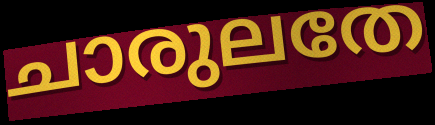
ചാരുലതേ